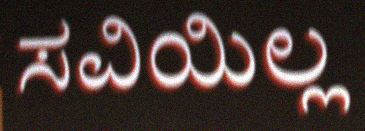
ಸವಿಯಿಲ್ಲ